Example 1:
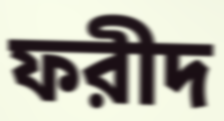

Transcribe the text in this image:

ফরীদ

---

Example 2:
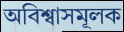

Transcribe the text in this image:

অবিশ্বাসমূলক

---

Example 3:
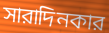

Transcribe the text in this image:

সারাদিনকার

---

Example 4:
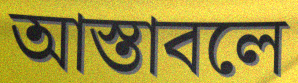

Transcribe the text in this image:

আস্তাবলে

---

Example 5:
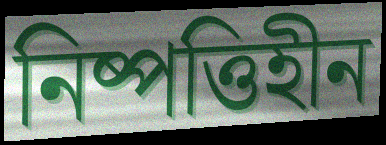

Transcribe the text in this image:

নিষ্পত্তিহীন